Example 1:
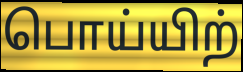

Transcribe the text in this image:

பொய்யிற்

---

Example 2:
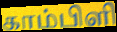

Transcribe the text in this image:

காம்பிளி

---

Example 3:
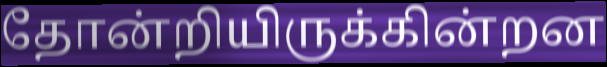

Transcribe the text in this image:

தோன்றியிருக்கின்றன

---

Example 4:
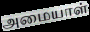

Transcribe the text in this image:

அமையாள்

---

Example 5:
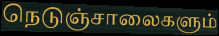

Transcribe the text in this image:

நெடுஞ்சாலைகளும்